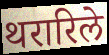
थरारिले